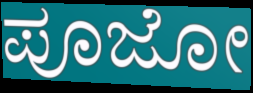
ಪೂಜೋ